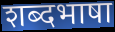
शब्दभाषा